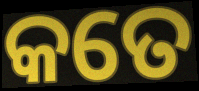
କତେ